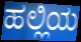
ಹಲ್ಲಿಯ